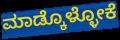
ಮಾಡ್ಕೊಳ್ಳೋಕೆ